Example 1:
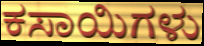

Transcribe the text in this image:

ಕಸಾಯಿಗಳು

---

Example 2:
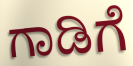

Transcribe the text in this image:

ಗಾಡಿಗೆ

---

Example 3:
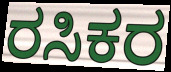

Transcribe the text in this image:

ರಸಿಕರ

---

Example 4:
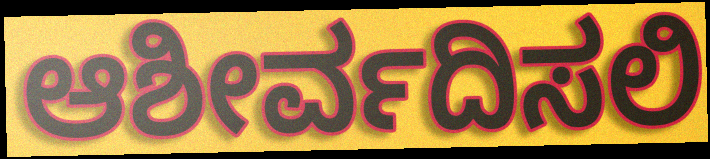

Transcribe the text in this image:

ಆಶೀರ್ವದಿಸಲಿ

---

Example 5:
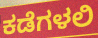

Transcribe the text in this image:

ಕಡೆಗಳಲಿ